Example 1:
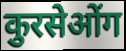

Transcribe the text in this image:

कुरसेओंग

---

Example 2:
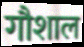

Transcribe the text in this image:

गौशाल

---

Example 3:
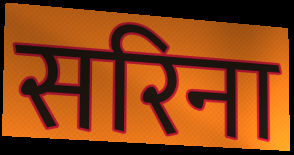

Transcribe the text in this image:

सरिना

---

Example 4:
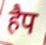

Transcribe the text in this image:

हैप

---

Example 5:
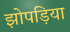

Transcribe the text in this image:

झोपड़िया